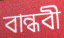
বান্ধবী